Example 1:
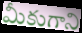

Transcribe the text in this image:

మీకుగాని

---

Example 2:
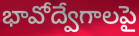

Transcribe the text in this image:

భావోద్వేగాలపై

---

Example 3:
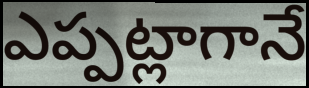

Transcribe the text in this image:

ఎప్పట్లాగానే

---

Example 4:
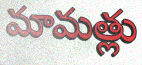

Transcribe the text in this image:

మామత్లు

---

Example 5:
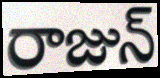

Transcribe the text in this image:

రాజున్